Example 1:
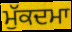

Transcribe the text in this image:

ਮੁੱਕਦਮਾ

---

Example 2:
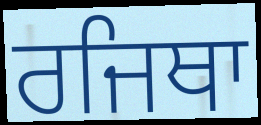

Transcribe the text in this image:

ਰਜਿਥਾ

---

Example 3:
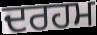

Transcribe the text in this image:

ਦਰਹਮ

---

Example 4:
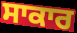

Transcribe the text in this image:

ਸਾਕਾਰ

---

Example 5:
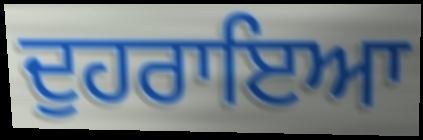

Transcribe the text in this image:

ਦੁਹਰਾਇਆ